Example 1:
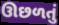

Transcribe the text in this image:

ઊછળતું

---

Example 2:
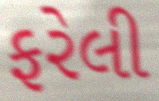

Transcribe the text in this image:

ફરેલી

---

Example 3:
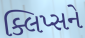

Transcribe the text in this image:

ક્લિપ્સને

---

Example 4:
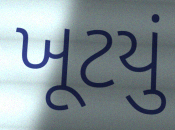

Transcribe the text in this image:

ખૂટયું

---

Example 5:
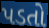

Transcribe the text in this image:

પડતો